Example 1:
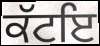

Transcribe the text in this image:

ਕੱਟਇ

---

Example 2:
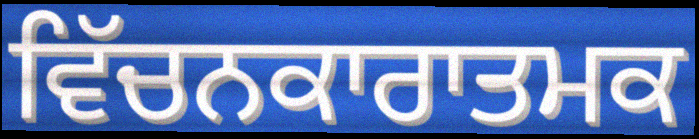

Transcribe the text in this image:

ਵਿੱਚਨਕਾਰਾਤਮਕ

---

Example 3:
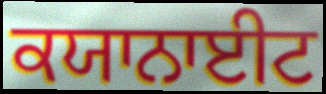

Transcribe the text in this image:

ਕਯਾਨਾਈਟ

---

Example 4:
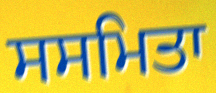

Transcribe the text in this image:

ਸਸਮਿਤਾ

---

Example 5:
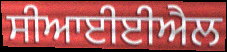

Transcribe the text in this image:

ਸੀਆਈਈਐਲ